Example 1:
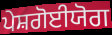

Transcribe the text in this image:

ਪੇਸ਼ਗੋਈਯੋਗ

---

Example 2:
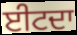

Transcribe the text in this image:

ਈਟਦਾ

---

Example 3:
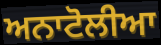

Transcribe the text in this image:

ਅਨਾਟੋਲੀਆ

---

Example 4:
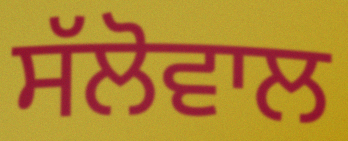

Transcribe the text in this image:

ਸੱਲੋਵਾਲ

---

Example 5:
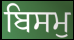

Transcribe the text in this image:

ਬਿਸਮੁ